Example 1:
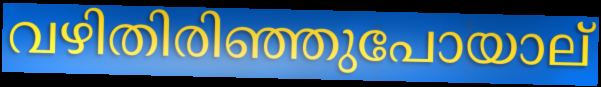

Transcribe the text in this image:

വഴിതിരിഞ്ഞുപോയാല്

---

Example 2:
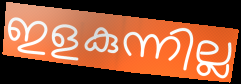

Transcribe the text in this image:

ഇളകുന്നില്ല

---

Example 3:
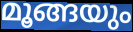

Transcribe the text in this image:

മൂങ്ങയും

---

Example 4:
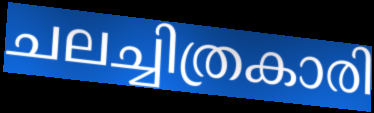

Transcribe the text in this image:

ചലച്ചിത്രകാരി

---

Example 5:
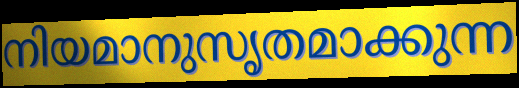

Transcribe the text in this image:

നിയമാനുസൃതമാക്കുന്ന